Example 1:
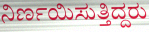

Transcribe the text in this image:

ನಿರ್ಣಯಿಸುತ್ತಿದ್ದರು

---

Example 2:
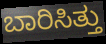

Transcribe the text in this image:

ಬಾರಿಸಿತ್ತು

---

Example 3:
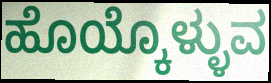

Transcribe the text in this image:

ಹೊಯ್ಕೊಳ್ಳುವ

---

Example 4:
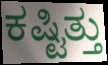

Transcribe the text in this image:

ಕಷ್ಟಿತ್ತು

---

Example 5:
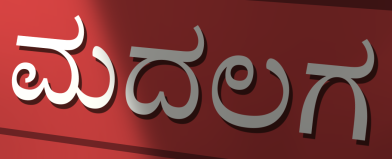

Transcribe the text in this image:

ಮದಲಗ